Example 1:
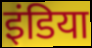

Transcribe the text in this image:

इंडिया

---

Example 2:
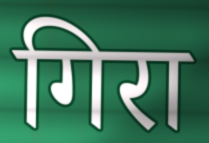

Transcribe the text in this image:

गिरा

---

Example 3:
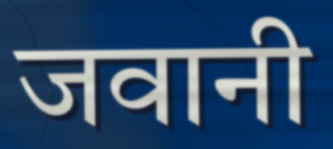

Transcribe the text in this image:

जवानी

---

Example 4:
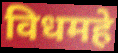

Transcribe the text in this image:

विधमहे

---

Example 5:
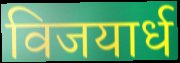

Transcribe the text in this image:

विजयार्ध